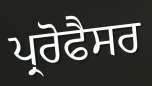
ਪ੍ਰਰੋਫੈਸਰ